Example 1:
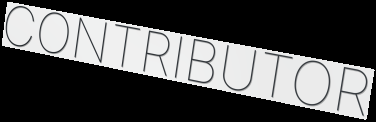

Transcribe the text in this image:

CONTRIBUTOR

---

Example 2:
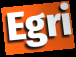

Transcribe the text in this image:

Egri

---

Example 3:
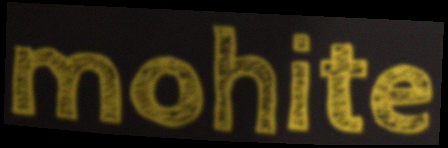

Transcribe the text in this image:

mohite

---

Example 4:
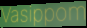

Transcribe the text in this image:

Vasippom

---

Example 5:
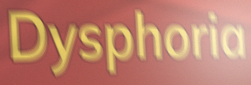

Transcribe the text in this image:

Dysphoria